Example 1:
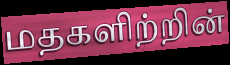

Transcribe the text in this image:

மதகளிற்றின்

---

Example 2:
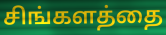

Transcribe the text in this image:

சிங்களத்தை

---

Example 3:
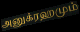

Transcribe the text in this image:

அனுக்ரஹமும்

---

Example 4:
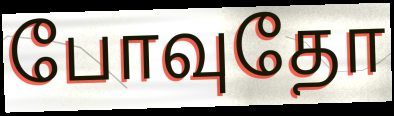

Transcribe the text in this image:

போவுதோ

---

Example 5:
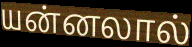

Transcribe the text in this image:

யன்னலால்